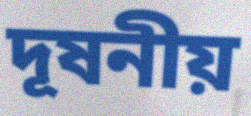
দূষনীয়